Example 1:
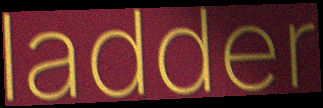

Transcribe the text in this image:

ladder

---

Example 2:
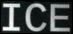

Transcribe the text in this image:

ICE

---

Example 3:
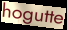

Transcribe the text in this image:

hogutte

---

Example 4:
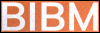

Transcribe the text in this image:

BIBM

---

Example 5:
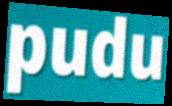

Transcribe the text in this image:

pudu